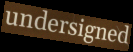
undersigned